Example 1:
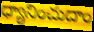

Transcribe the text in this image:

ధ్యానించుదాం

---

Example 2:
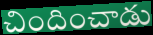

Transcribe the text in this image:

చిందించాడు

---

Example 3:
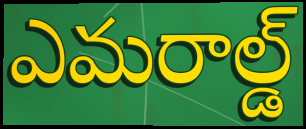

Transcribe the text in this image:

ఎమరాల్డ్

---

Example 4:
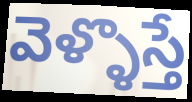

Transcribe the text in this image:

వెళ్ళొస్తే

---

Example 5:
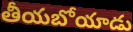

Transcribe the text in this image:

తీయబోయాడు